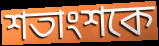
শতাংশকে